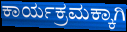
ಕಾರ್ಯಕ್ರಮಕ್ಕಾಗಿ